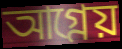
আগ্নেয়